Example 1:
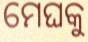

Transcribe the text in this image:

ମେଘକୁ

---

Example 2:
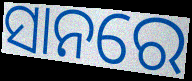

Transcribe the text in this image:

ସାନରେ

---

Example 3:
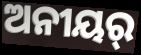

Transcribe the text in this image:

ଅନୀୟର୍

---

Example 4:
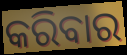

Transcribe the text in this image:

କରିବାର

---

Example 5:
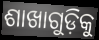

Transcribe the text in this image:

ଶାଖାଗୁଡ଼ିକୁ